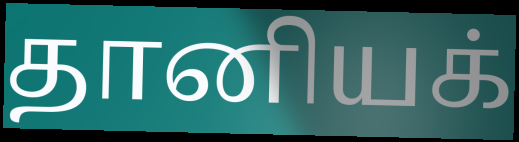
தானியக்